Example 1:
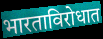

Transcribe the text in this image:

भारताविरोधात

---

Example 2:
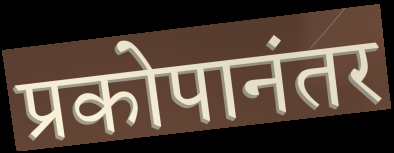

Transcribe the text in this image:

प्रकोपानंतर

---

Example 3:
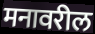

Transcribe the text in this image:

मनावरील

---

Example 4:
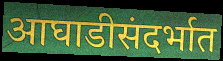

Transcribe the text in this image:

आघाडीसंदर्भात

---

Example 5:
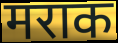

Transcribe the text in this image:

मराक